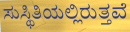
ಸುಸ್ಥಿತಿಯಲ್ಲಿರುತ್ತವೆ